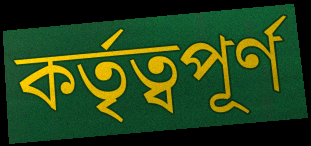
কর্তৃত্বপূর্ণ